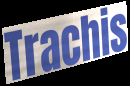
Trachis